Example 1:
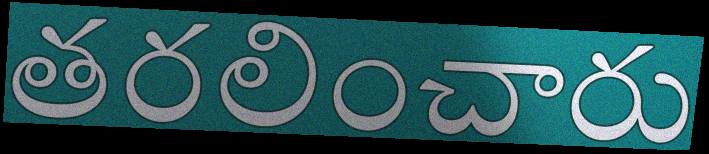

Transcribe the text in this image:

తరలించారు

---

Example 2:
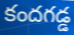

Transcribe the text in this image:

కందగడ్డ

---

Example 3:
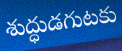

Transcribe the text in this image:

శుద్ధుడగుటకు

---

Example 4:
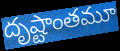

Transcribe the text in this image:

దృష్టాంతమూ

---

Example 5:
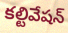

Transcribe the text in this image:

కల్టివేషన్